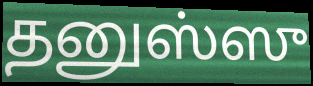
தனுஸ்ஸு